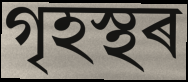
গৃহস্থৰ